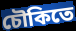
চৌকিতে